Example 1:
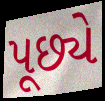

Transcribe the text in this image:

પૂછ્યે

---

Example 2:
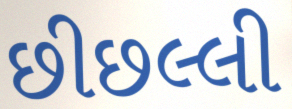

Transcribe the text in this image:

છીછલ્લી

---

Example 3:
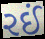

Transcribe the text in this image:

રઈં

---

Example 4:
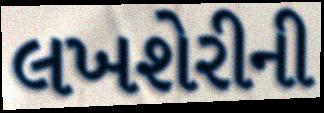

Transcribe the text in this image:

લખશેરીની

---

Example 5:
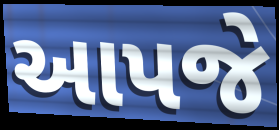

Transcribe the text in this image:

આપજે